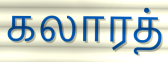
கலாரத்